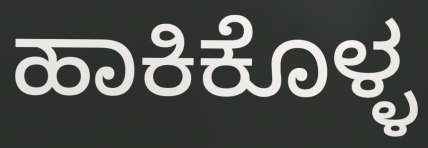
ಹಾಕಿಕೊಳ್ಳ